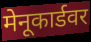
मेनूकार्डवर